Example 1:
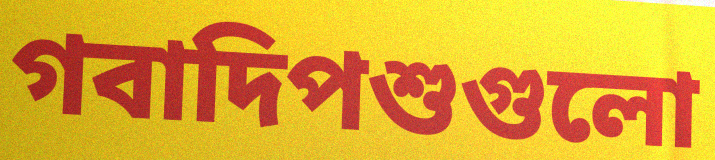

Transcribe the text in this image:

গবাদিপশুগুলো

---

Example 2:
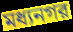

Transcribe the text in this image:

মধ্যনগর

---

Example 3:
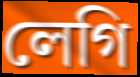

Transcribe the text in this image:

লেগি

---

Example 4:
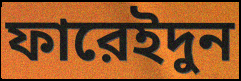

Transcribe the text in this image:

ফারেইদুন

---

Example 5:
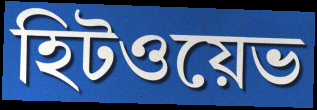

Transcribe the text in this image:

হিটওয়েভ